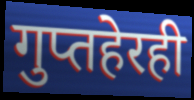
गुप्तहेरही